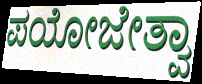
ಪಯೋಜೇತ್ವಾ